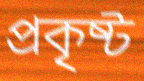
প্রকৃষ্ট